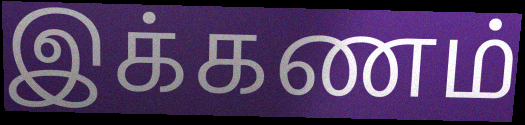
இக்கணம்